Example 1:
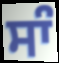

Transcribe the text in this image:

ਸਾੰ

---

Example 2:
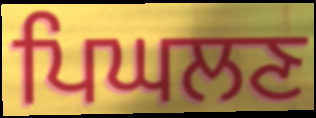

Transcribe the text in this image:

ਪਿਘਲਣ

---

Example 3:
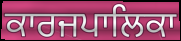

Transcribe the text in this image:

ਕਾਰਜਪਾਲਿਕਾ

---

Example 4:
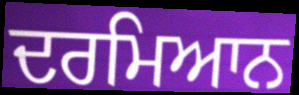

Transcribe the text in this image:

ਦਰਮਿਆਨ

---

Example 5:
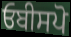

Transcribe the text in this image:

ਓਬੀਸਪੋ